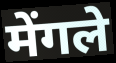
मेंगले